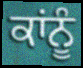
ਕਾਂਨੂੰ